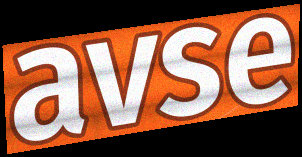
avse